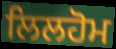
ਲਿਲਹੋਮ